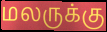
மலருக்கு